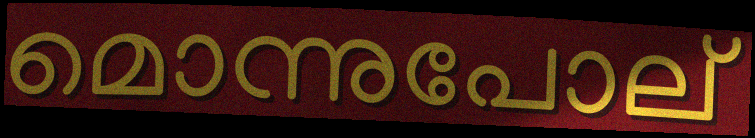
മൊന്നുപോല്